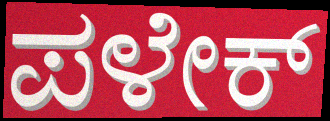
ಪಳೇಕ್